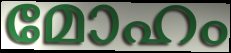
മോഹം